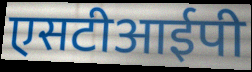
एसटीआईपी